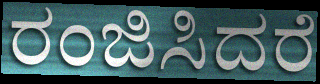
ರಂಜಿಸಿದರೆ